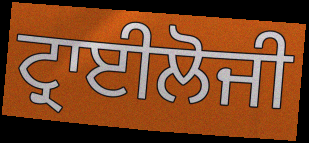
ਟ੍ਰਾਈਲੋਜੀ